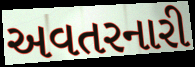
અવતરનારી